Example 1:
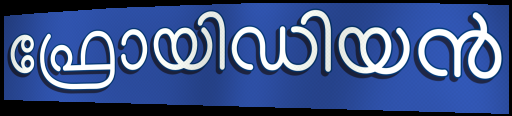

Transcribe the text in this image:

ഫ്രോയിഡിയൻ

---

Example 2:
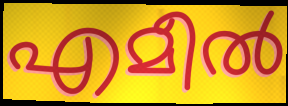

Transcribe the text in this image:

എമീൽ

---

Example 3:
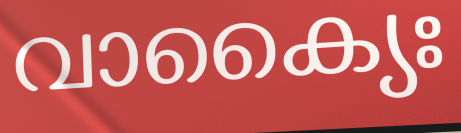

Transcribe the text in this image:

വാക്യൈഃ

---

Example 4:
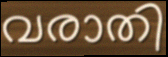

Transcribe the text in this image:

വരാതി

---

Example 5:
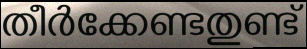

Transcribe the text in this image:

തീർക്കേണ്ടതുണ്ട്